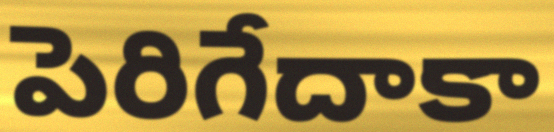
పెరిగేదాకా